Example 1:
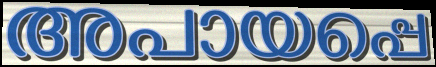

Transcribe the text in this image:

അപായപ്പെ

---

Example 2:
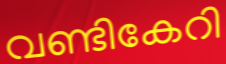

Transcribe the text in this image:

വണ്ടികേറി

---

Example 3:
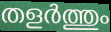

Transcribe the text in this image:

തളർത്തും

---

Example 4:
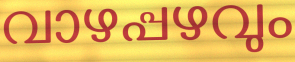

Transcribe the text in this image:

വാഴപ്പഴവും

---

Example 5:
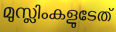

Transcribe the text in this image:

മുസ്ലിംകളുടേത്